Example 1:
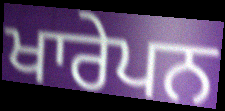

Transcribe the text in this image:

ਖਾਰੇਪਨ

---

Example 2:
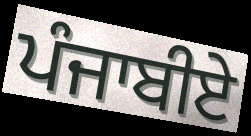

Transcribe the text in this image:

ਪੰਜਾਬੀਏ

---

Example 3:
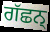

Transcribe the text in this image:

ਗੱਛਨ੍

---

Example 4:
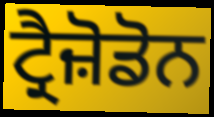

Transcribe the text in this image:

ਟ੍ਰੈਜ਼ੋਡੋਨ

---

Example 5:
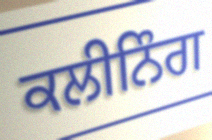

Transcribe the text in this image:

ਕਲੀਨਿੰਗ